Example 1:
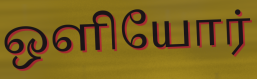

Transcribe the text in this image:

ஒளியோர்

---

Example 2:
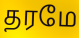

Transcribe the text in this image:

தரமே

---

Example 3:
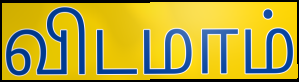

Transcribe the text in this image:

விடமாம்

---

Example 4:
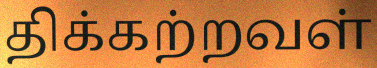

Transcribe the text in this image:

திக்கற்றவள்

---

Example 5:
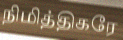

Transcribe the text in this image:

நிமித்திகரே